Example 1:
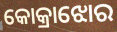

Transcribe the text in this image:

କୋକ୍ରାଝୋର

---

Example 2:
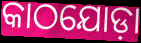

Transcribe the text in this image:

କାଠଯୋଡ଼ା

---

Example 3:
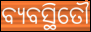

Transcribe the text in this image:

ବ୍ୟବସ୍ଥିତୌ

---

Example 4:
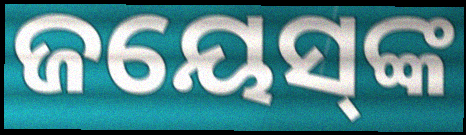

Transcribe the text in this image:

ଜୟେସ୍‌ଙ୍କ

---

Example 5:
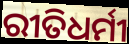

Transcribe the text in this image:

ରୀତିଧର୍ମୀ